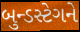
બુન્ડસ્ટેગને